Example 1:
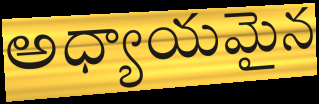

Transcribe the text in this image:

అధ్యాయమైన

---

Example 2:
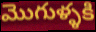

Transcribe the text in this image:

మొగుళ్ళకి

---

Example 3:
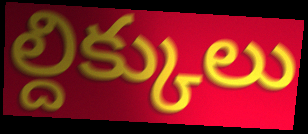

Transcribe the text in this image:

ల్దిక్కులు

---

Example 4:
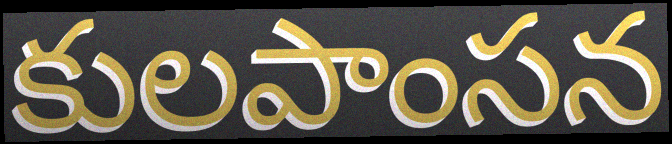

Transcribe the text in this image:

కులపాంసన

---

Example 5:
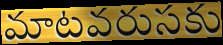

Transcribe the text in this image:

మాటవరుసకు